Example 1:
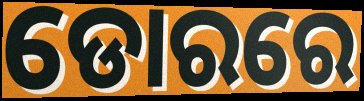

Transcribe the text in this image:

ଡୋରରେ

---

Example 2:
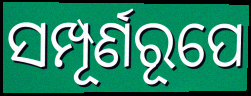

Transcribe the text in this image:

ସମ୍ପୂର୍ଣରୂପେ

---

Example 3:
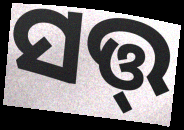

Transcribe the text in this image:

ସତ୍ତ୍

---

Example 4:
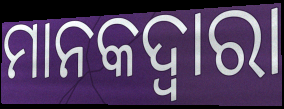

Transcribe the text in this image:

ମାନକଦ୍ୱାରା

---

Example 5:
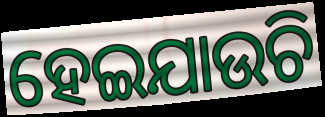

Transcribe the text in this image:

ହେଇଯାଉଚି